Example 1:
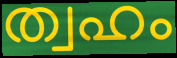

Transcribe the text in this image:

ത്വഹം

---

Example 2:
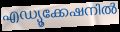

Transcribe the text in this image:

എഡ്യൂക്കേഷനിൽ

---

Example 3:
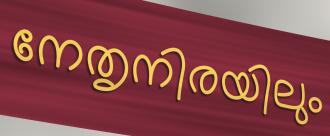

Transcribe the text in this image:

നേതൃനിരയിലും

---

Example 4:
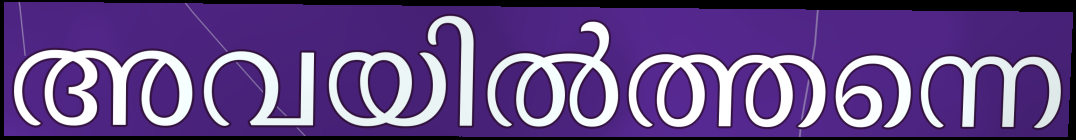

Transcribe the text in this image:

അവയിൽത്തന്നെ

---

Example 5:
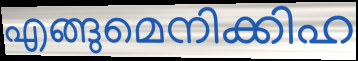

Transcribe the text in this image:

എങ്ങുമെനിക്കിഹ